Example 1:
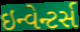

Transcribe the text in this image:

ઇન્વેન્ટર્સ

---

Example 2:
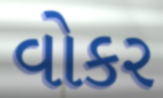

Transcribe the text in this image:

વોકર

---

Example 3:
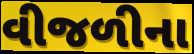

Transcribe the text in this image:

વીજળીના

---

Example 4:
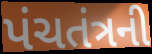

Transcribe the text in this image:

પંચતંત્રની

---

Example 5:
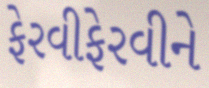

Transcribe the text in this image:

ફેરવીફેરવીને